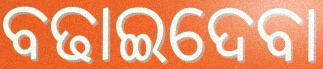
ବଢାଇଦେବା